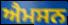
ਐਮਸਨ